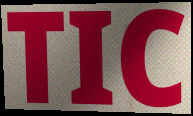
TIC